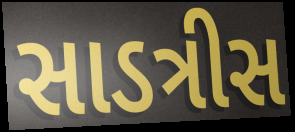
સાડત્રીસ